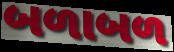
બળાબળ